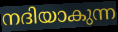
നദിയാകുന്ന